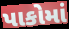
પાકોમાં